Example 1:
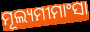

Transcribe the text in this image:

ମୂଲ୍ୟମୀମାଂସା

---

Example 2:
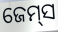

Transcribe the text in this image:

ଜେମ୍‍ସ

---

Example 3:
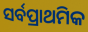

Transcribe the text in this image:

ସର୍ବପ୍ରାଥମିକ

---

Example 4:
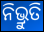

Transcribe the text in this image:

ନିଭ୍ରୁତି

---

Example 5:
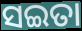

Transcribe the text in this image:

ସଇତା